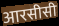
आरसीसी